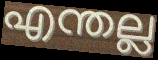
എന്തല്ല